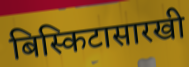
बिस्किटासारखी